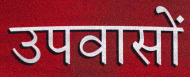
उपवासों